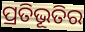
ପ୍ରତିଭୂତିର